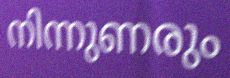
നിന്നുണരും